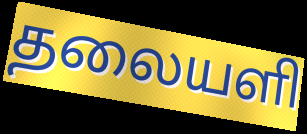
தலையளி